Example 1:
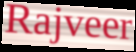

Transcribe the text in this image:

Rajveer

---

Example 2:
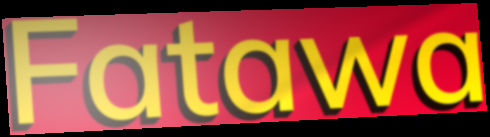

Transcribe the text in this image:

Fatawa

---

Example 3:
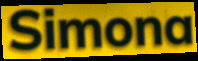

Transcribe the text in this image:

Simona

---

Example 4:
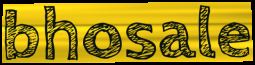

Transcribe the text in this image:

bhosale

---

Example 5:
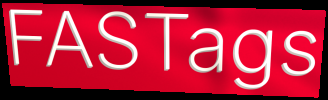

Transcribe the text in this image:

FASTags